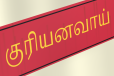
குரியனவாய்